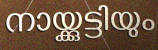
നായ്ക്കുട്ടിയും